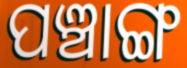
ପଞ୍ଚାଙ୍ଗ